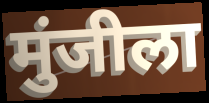
मुंजीला